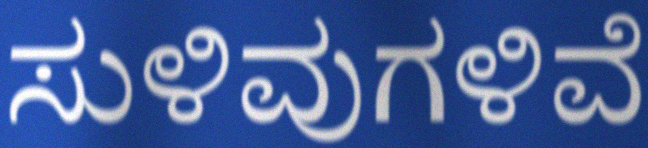
ಸುಳಿವುಗಳಿವೆ